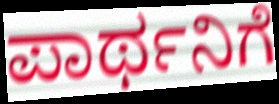
ಪಾರ್ಥನಿಗೆ